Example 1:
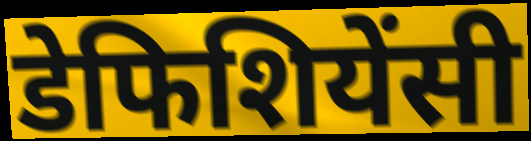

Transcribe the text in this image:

डेफिशियेंसी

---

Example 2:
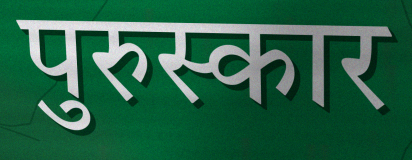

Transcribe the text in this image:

पुरुस्‍कार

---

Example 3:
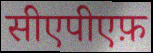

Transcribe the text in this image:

सीएपीएफ़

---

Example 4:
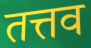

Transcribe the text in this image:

तत्तव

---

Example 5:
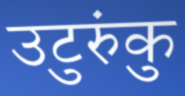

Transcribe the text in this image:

उटुरुंकु